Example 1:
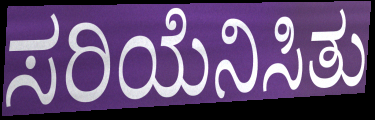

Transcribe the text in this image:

ಸರಿಯೆನಿಸಿತು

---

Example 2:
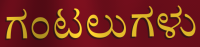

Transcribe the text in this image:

ಗಂಟಲುಗಳು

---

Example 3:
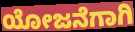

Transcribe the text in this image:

ಯೋಜನೆಗಾಗಿ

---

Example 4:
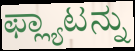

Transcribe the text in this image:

ಫ್ಲ್ಯಾಟನ್ನು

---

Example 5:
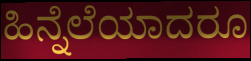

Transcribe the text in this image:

ಹಿನ್ನೆಲೆಯಾದರೂ